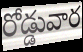
రోడ్డువార